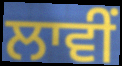
ਲਾਵੀਂ